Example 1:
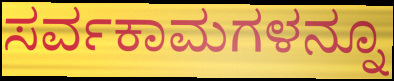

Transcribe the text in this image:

ಸರ್ವಕಾಮಗಳನ್ನೂ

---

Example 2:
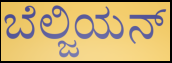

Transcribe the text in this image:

ಬೆಲ್ಜಿಯನ್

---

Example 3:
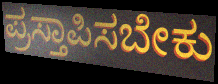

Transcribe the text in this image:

ಪ್ರಸ್ತಾಪಿಸಬೇಕು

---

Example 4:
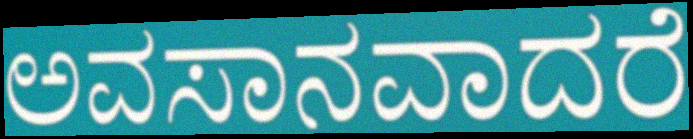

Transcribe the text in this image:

ಅವಸಾನವಾದರೆ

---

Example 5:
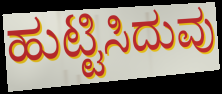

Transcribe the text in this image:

ಹುಟ್ಟಿಸಿದುವು